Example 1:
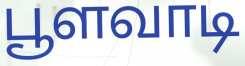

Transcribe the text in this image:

பூளவாடி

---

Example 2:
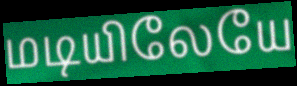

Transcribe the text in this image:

மடியிலேயே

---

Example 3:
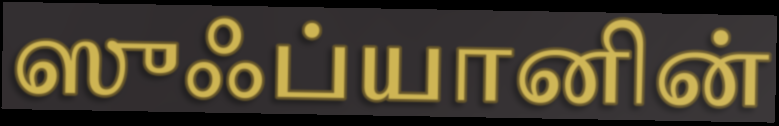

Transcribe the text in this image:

ஸுஃப்யானின்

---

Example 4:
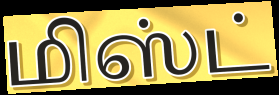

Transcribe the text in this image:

மிஸ்ட்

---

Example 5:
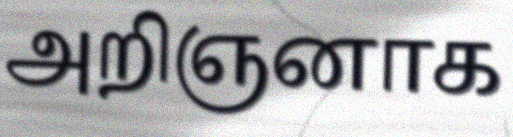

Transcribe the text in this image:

அறிஞனாக